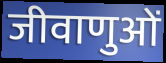
जीवाणुओं